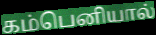
கம்பெனியால்